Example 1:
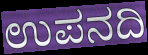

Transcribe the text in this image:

ಉಪನದಿ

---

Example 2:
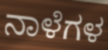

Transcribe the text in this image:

ನಾಳೆಗಳ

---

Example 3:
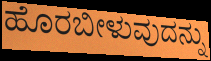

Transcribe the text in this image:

ಹೊರಬೀಳುವುದನ್ನು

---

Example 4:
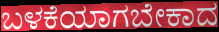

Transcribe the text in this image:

ಬಳಕೆಯಾಗಬೇಕಾದ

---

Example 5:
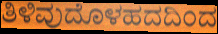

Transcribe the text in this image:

ತಿಳಿವುದೊಳಹದದಿಂದ